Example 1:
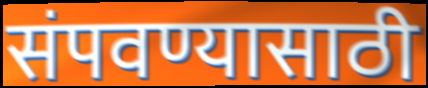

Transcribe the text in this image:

संपवण्यासाठी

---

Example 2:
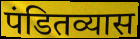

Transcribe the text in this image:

पंडितव्यास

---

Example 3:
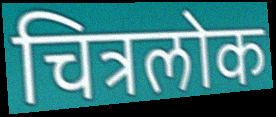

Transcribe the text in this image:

चित्रलोक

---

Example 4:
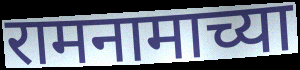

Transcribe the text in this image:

रामनामाच्या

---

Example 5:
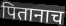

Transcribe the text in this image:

पितानाच